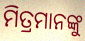
ମିତ୍ରମାନଙ୍କୁ